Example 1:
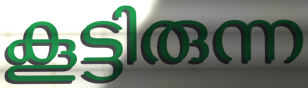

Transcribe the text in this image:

കൂട്ടിരുന്ന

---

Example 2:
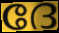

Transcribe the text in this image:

ദേ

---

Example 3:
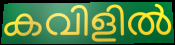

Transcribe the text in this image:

കവിളിൽ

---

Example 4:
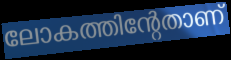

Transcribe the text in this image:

ലോകത്തിന്റേതാണ്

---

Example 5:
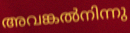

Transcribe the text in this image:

അവങ്കൽനിന്നു